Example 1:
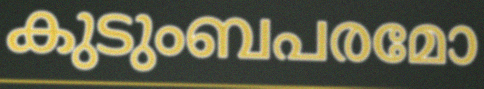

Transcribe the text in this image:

കുടുംബപരമോ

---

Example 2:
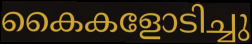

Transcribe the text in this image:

കൈകളോടിച്ചു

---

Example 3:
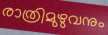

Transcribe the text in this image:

രാത്രിമുഴുവനും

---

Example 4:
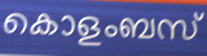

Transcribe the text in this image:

കൊളംബസ്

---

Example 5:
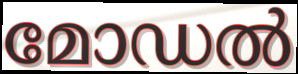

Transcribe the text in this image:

മോഡൽ